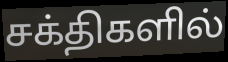
சக்திகளில்